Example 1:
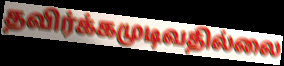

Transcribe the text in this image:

தவிர்க்கமுடிவதில்லை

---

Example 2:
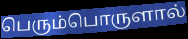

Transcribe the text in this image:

பெரும்பொருளால்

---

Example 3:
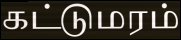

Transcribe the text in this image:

கட்டுமரம்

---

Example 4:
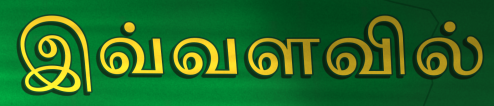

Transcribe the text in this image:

இவ்வளவில்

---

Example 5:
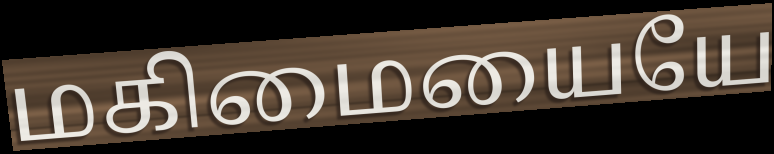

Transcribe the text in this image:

மகிமையையே